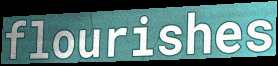
flourishes